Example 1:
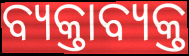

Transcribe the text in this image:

ବ୍ୟକ୍ତାବ୍ୟକ୍ତ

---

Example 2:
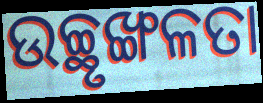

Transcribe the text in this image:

ଉଚ୍ଛୃଙ୍ଖଳତା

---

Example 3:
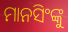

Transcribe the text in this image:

ମାନସିଂଙ୍କୁ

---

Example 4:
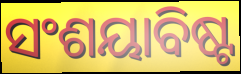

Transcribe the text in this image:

ସଂଶୟାବିଷ୍ଟ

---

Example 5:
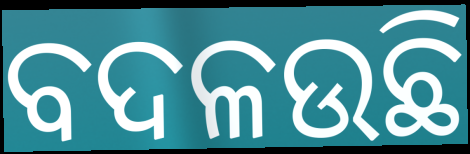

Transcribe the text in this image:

ବଦଳଉଛି